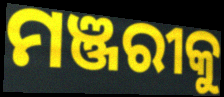
ମଞ୍ଜରୀକୁ